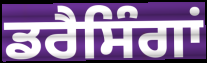
ਡਰੈਸਿੰਗਾਂ